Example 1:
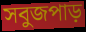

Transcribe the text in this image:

সবুজপাড়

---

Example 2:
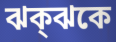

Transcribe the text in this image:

ঝক্ঝকে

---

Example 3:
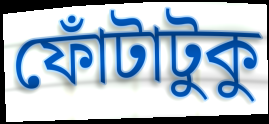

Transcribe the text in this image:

ফোঁটাটুকু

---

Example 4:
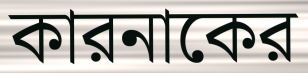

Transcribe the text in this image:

কারনাকের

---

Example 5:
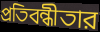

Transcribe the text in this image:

প্রতিবন্ধীতার